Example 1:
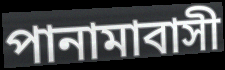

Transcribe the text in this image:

পানামাবাসী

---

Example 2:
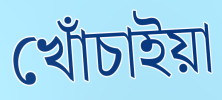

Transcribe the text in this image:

খোঁচাইয়া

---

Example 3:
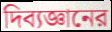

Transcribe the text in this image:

দিব্যজ্ঞানের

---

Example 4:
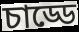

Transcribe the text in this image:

চাড্ডে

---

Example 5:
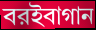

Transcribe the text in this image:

বরইবাগান